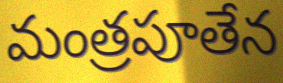
మంత్రపూతేన